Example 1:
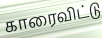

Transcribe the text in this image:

காரைவிட்டு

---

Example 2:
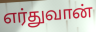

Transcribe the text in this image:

எர்துவான்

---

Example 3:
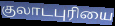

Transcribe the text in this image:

குலாடபுரியை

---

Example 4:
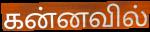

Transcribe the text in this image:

கன்னவில்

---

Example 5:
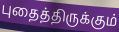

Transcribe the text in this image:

புதைத்திருக்கும்